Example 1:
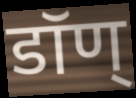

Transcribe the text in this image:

डॉण्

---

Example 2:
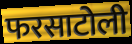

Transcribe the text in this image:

फरसाटोली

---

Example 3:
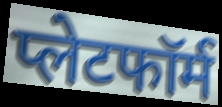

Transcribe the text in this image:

प्लेटफॉर्म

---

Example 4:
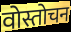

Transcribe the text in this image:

वोस्तोचन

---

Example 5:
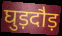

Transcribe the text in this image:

घुड़दौड़